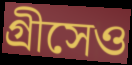
গ্রীসেও